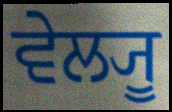
ਵੇਲ੍ਯੂ